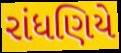
રાંધણિયે